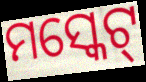
ମସ୍କେଟ୍